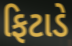
ફિટાડે